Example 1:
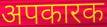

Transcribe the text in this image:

अपकारक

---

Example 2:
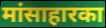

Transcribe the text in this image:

मांसाहारका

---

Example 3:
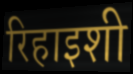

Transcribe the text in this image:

रिहाइशी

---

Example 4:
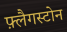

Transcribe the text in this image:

फ़्लैगस्टोन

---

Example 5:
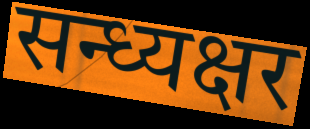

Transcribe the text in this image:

सन्ध्यक्षर